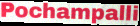
Pochampalli